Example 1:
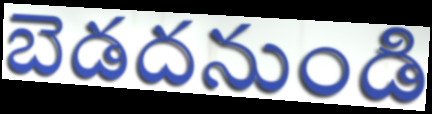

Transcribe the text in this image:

బెడదనుండి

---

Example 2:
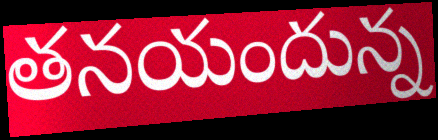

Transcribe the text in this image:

తనయందున్న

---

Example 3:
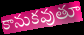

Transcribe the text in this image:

కానుకవుతూ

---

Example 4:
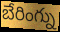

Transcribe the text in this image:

బేరింగ్ను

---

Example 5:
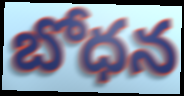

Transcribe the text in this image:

బోధన